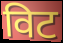
विट